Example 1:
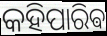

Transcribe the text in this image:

କହିପାରିଵ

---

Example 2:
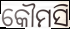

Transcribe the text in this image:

କୌମସି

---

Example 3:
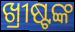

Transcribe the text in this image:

ଖ୍ରୀଷ୍ଟଙ୍କ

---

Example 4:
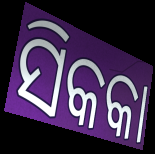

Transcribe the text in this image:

ସିକକା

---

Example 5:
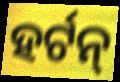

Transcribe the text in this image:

ହର୍ଟନ୍